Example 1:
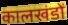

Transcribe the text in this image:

कालखंडों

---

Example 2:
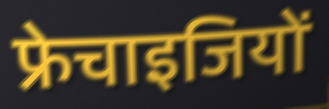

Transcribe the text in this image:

फ्रेचाइजियों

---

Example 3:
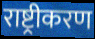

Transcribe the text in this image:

राष्ट्रीकरण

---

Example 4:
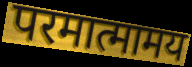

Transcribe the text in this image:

परमात्मामय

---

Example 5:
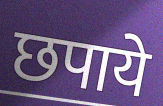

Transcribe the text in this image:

छपाये